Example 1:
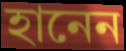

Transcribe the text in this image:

হানেন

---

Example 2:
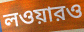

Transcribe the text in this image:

লওয়ারও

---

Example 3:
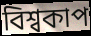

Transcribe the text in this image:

বিশ্বকাপ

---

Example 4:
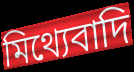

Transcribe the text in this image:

মিথ্যেবাদি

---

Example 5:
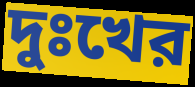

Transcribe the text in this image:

দুঃখের